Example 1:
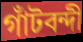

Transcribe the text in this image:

গাঁটবন্দী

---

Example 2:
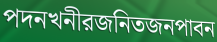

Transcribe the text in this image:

পদনখনীরজনিতজনপাবন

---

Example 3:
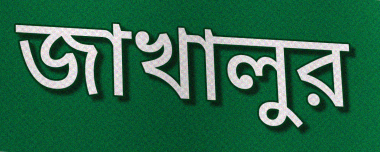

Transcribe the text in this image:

জাখালুর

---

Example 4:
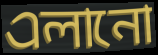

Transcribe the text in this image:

এলানো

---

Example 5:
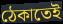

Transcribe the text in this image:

ঠেকাতেই